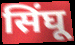
सिंघू